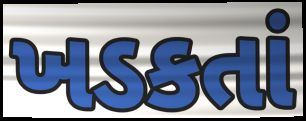
ખડકતાં